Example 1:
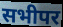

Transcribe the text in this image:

सभीपर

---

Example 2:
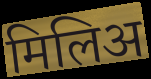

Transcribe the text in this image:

मिलिअ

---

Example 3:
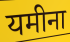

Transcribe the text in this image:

यमीना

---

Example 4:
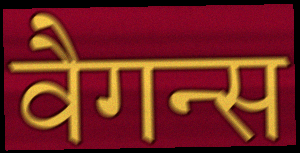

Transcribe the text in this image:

वैगन्स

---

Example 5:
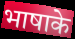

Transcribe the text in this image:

भाषाके